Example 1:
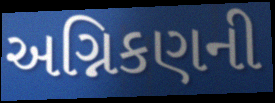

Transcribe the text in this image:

અગ્નિકણની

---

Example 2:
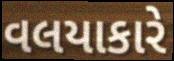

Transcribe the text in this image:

વલયાકારે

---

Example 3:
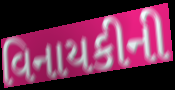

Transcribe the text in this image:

વિનાયકીની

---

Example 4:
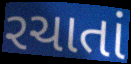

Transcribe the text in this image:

રચાતાં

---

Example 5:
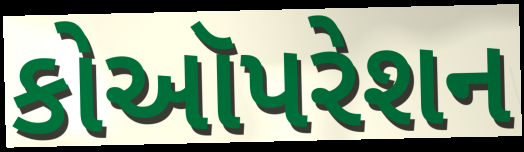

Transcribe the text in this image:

કોઑપરેશન